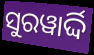
ସୁରୱାର୍ଦ୍ଦି